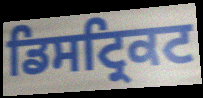
ਡਿਸਟ੍ਰਿਕਟ